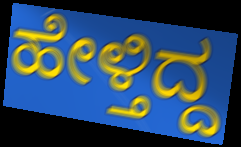
ಹೇಳ್ತಿದ್ದ